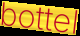
bottel